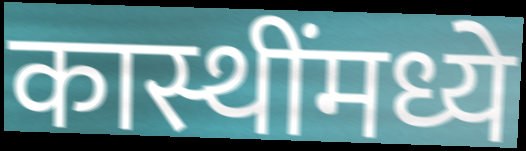
कास्थींमध्ये